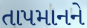
તાપમાનને